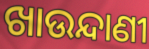
ଖାଉନ୍ଦାଣୀ